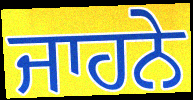
ਜਾਹਨੇ